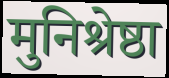
मुनिश्रेष्ठा